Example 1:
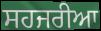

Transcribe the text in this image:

ਸਹਜਰੀਆ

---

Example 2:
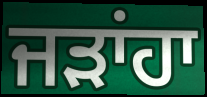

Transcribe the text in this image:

ਜੜਾਂਹਾ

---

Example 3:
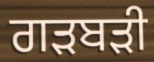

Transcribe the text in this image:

ਗੜਬੜੀ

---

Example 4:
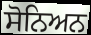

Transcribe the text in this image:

ਸੋਨਿਅਨ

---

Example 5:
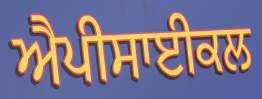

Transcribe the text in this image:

ਐਪੀਸਾਈਕਲ